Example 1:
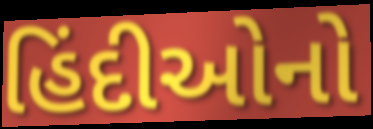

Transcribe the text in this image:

હિંદીઓનો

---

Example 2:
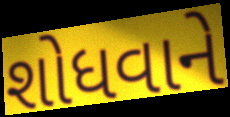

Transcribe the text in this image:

શોધવાને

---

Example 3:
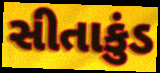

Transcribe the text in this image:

સીતાકુંડ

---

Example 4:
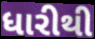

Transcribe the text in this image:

ધારીથી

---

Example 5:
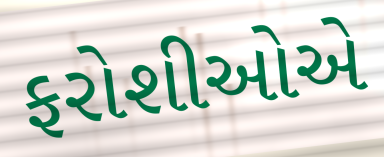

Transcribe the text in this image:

ફરોશીઓએ